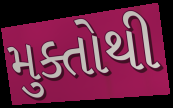
મુક્તોથી